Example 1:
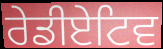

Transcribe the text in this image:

ਰੇਡੀਏਟਿਵ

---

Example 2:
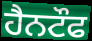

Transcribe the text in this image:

ਹੈਨਟੌਫ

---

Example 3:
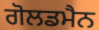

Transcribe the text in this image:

ਗੋਲਡਮੈਨ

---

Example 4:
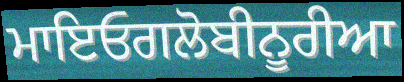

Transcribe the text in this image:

ਮਾਇਓਗਲੋਬੀਨੂਰੀਆ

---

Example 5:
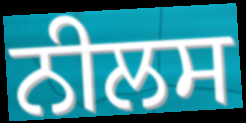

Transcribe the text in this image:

ਨੀਲਸ